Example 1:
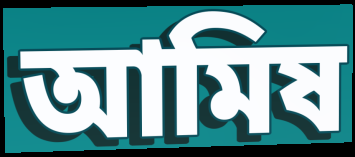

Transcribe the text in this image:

আমিষ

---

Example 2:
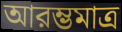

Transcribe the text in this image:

আরম্ভমাত্র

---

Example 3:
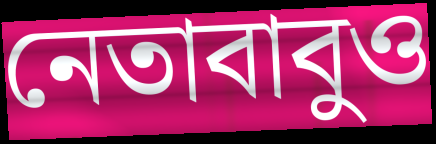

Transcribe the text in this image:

নেতাবাবুও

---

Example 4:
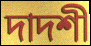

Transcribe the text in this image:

দাদশী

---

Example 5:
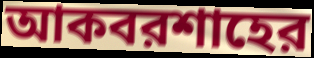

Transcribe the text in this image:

আকবরশাহের